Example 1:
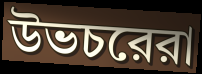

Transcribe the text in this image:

উভচরেরা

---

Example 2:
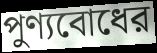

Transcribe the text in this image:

পুণ্যবোধের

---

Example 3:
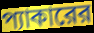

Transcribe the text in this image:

প্যাকারের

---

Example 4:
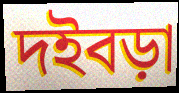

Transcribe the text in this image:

দইবড়া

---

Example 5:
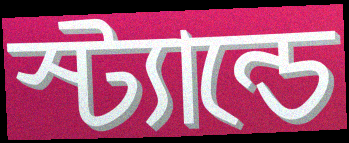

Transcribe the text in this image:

স্ট্যান্ডে